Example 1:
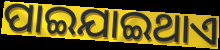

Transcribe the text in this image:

ପାଇଯାଇଥାଏ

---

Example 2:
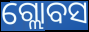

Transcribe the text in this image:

ଗ୍ଲୋବସ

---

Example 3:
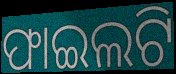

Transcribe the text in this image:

ଫାଇଲଟି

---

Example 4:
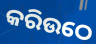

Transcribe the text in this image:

କରିଉଠେ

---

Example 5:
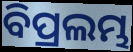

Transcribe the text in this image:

ବିପ୍ରଲମ୍ଭ